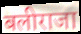
बलीराजा